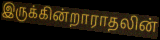
இருக்கின்றாராதலின்